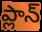
ప్లాన్